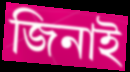
জিনাই